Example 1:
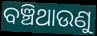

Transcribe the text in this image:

ବଞ୍ଚିଥାଉଣୁ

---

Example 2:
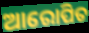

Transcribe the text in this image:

ଆରୋପିତ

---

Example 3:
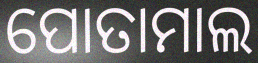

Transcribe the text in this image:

ପୋତାମାଲ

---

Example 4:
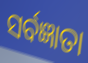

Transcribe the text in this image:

ସର୍ବଜ୍ଞାତା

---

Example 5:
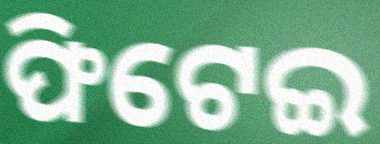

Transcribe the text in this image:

ଫିଟେଇ